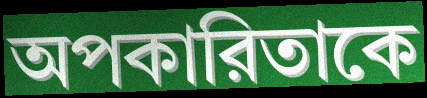
অপকারিতাকে